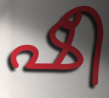
ഷീ